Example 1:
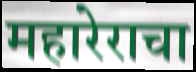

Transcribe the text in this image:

महारेराचा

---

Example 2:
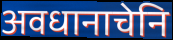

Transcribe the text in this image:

अवधानाचेनि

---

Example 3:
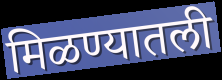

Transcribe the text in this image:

मिळण्यातली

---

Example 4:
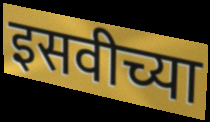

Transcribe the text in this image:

इसवीच्या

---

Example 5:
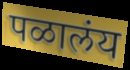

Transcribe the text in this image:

पळालंय